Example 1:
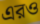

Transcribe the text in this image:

এরও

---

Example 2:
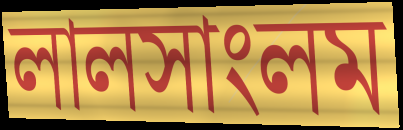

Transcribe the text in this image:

লালসাংলম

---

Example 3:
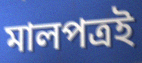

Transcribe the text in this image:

মালপত্রই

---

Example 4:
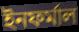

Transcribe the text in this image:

ইনফর্মাল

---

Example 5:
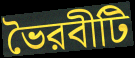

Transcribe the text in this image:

ভৈরবীটি